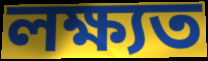
লক্ষ্যত